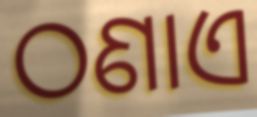
ଠଣାଏ